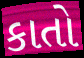
કાતો